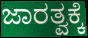
ಜಾರತ್ವಕ್ಕೆ